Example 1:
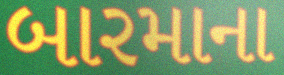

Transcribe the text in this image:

બારમાના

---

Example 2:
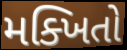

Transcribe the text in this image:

મક્ખિતો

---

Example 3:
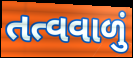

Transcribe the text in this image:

તત્વવાળું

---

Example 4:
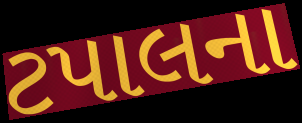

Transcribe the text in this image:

ટપાલના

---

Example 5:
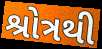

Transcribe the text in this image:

શ્રોત્રથી